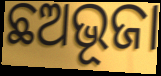
ଛଅଭୂଜା